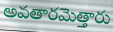
అవతారమెత్తారు